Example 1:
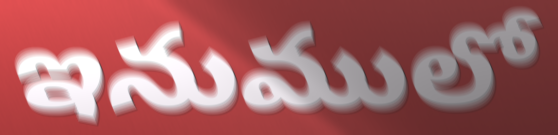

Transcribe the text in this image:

ఇనుములో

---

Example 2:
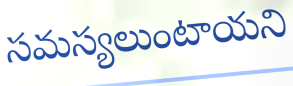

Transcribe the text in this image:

సమస్యలుంటాయని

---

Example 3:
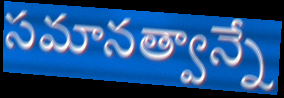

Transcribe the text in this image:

సమానత్వాన్నే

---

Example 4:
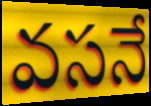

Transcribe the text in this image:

వసనే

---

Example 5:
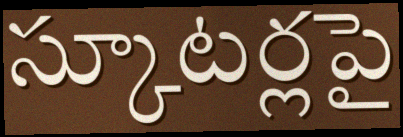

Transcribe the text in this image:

స్కూటర్లపై